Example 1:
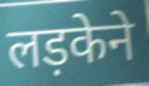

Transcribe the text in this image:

लड़केने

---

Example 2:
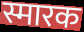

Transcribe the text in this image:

स्मारक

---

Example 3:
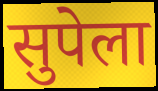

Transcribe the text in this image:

सुपेला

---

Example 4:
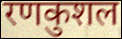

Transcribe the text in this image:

रणकुशल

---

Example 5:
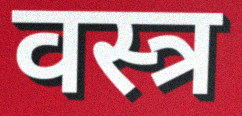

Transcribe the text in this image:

वस्त्र